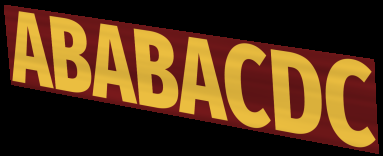
ABABACDC